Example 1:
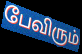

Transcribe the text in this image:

பேவிரும்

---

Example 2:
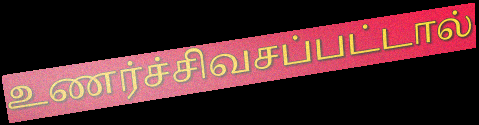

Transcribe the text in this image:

உணர்ச்சிவசப்பட்டால்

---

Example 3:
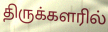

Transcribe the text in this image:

திருக்களரில்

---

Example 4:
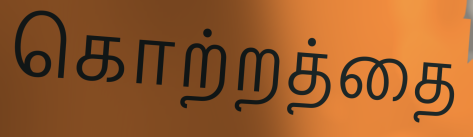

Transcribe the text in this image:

கொற்றத்தை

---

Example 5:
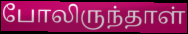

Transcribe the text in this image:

போலிருந்தாள்